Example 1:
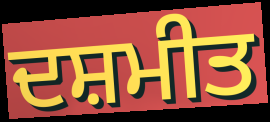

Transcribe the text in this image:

ਦਸ਼ਮੀਤ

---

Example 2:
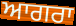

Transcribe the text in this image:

ਆਗਰਾ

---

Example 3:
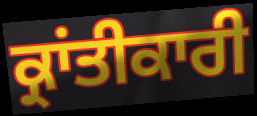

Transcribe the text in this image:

ਕ੍ਰਾਂਤੀਕਾਰੀ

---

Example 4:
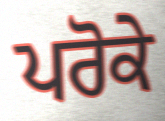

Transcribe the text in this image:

ਪਰੋਕੇ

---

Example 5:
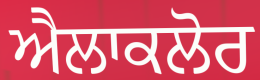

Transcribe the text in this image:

ਐਲਾਕਲੋਰ